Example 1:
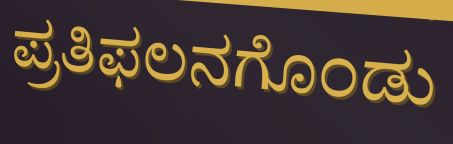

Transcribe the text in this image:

ಪ್ರತಿಫಲನಗೊಂಡು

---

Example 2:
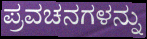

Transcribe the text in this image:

ಪ್ರವಚನಗಳನ್ನು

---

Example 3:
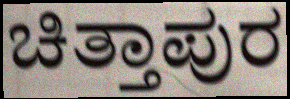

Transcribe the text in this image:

ಚಿತ್ತಾಪುರ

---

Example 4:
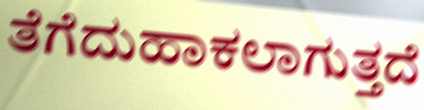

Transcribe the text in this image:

ತೆಗೆದುಹಾಕಲಾಗುತ್ತದೆ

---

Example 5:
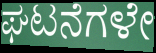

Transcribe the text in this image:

ಘಟನೆಗಳೇ